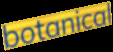
botanical